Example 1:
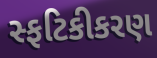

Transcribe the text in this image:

સ્ફટિકીકરણ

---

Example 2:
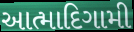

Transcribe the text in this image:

આત્માદિગામી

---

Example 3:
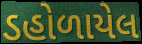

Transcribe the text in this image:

ડહોળાયેલ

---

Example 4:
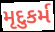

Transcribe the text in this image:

મૃદુકર્મ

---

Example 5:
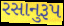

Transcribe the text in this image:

રસાનુરૂપ